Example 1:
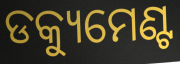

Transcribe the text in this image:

ଡକ୍ୟୁମେଣ୍ଟ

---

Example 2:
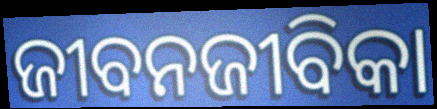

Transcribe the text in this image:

ଜୀବନଜୀବିକା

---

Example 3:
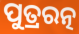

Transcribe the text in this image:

ପୁତ୍ରରତ୍ନ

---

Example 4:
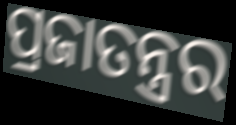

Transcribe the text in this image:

ପ୍ରଜାତନ୍ତ୍ରର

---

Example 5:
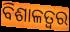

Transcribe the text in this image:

ବିଶାଳତ୍ୱର